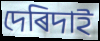
দেৰিদাই